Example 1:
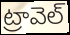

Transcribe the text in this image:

ట్రావెల్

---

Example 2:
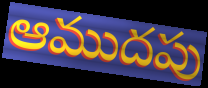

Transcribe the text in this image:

ఆముదపు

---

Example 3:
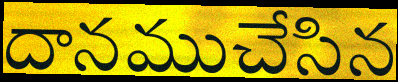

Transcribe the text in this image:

దానముచేసిన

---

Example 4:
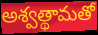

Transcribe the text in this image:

అశ్వత్థామతో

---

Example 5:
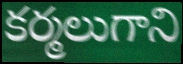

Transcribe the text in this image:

కర్మలుగాని